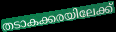
തടാകക്കരയിലേക്ക്